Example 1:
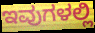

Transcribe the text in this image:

ಇವುಗಳಲ್ಲಿ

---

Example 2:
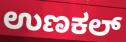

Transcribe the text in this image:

ಉಣಕಲ್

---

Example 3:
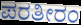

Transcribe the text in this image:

ಪರತೀರಂ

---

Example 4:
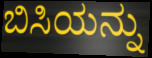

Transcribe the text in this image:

ಬಿಸಿಯನ್ನು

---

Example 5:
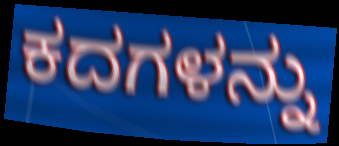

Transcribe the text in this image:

ಕದಗಳನ್ನು